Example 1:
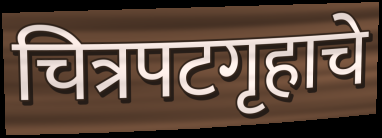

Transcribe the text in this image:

चित्रपटगृहाचे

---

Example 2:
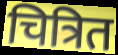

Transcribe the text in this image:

चित्रित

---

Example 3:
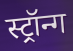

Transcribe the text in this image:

स्ट्रॉन्ग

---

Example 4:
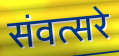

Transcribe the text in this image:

संवत्सरे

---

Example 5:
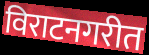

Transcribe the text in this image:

विराटनगरीत